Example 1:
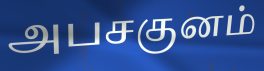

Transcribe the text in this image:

அபசகுனம்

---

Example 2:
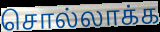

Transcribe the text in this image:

சொல்லாக்க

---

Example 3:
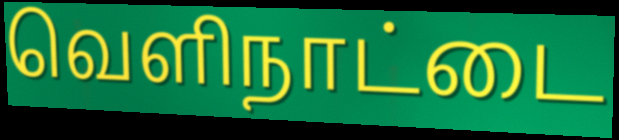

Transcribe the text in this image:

வெளிநாட்டை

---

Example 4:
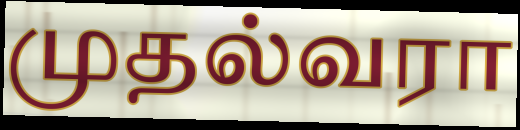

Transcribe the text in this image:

முதல்வரா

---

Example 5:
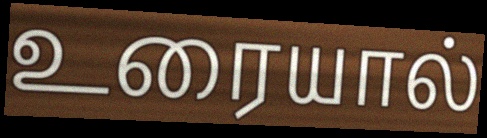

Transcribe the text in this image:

உரையால்